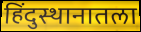
हिंदुस्थानातला